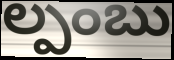
ల్పంబు